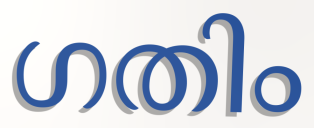
ഗതിം